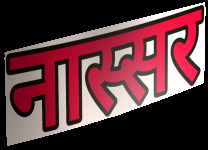
नास्सर